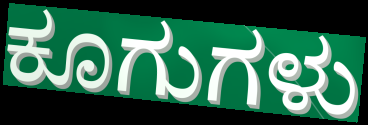
ಕೂಗುಗಳು